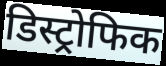
डिस्ट्रोफिक